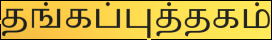
தங்கப்புத்தகம்